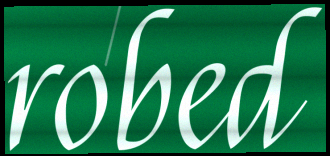
robed